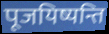
पूजयिष्यन्ति